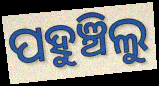
ପହୁଞ୍ଚିଲୁ